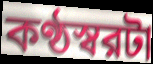
কণ্ঠস্বরটা